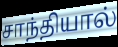
சாந்தியால்